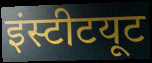
इंस्‍टीटयूट